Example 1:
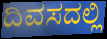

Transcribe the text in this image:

ದಿವಸದಲ್ಲಿ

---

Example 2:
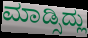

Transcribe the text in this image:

ಮಾಡ್ಸಿದ್ಲು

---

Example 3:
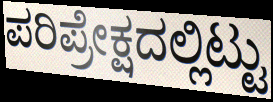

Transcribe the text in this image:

ಪರಿಪ್ರೇಕ್ಷದಲ್ಲಿಟ್ಟು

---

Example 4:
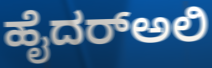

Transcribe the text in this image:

ಹೈದರ್‌ಅಲಿ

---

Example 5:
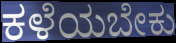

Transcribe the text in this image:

ಕಳೆಯಬೇಕು